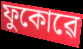
ফুকোৱে